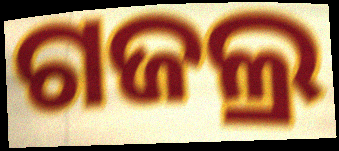
ଗଜଲ୍ର